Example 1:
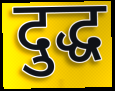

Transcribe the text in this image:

दुद्ध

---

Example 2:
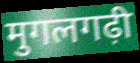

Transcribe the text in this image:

मुगलगढ़ी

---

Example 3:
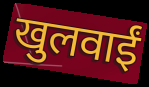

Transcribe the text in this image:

खुलवाईं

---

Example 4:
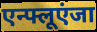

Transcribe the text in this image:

एन्फ्लूएंजा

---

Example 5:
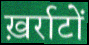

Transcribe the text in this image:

ख़र्राटों